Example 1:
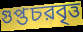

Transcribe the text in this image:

গুপ্তচরবৃত্ত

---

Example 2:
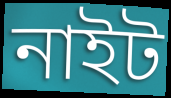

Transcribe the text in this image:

নাইট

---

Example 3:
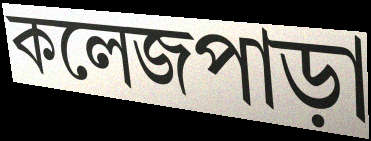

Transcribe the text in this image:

কলেজপাড়া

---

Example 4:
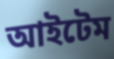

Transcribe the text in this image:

আইটেম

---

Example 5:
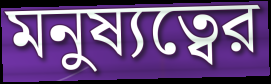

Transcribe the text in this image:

মনুষ্যত্বের